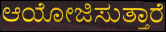
ಆಯೋಜಿಸುತ್ತಾರೆ